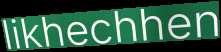
likhechhen